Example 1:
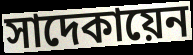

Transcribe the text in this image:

সাদেকায়েন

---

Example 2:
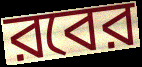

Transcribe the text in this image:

রবের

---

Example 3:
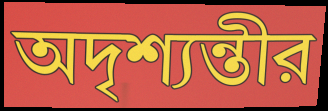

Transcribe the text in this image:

অদৃশ্যন্তীর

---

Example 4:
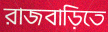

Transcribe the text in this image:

রাজবাড়িতে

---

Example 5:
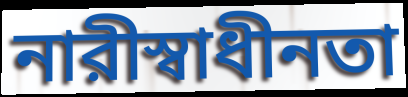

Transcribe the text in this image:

নারীস্বাধীনতা